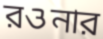
রওনার